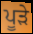
ਪੂੜੇ